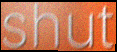
shut